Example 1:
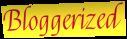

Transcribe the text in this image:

Bloggerized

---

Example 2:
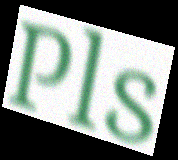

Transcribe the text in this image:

Pls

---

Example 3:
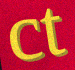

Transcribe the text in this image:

ct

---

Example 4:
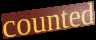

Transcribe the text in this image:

counted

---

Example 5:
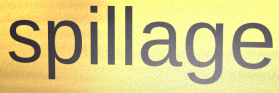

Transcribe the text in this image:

spillage